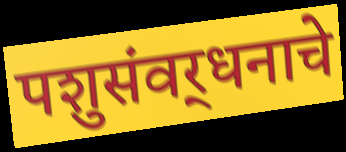
पशुसंवर्धनाचे